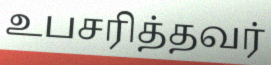
உபசரித்தவர்